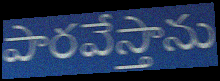
పారవేస్తాను